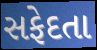
સફેદતા